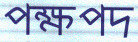
পক্ষপদ